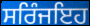
ਸਰਿੰਜਇਹ